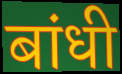
बांधी